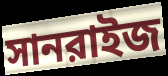
সানরাইজ